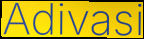
Adivasi